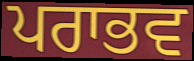
ਪਰਾਭਵ